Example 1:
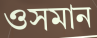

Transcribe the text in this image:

ওসমান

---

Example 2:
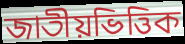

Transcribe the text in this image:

জাতীয়ভিত্তিক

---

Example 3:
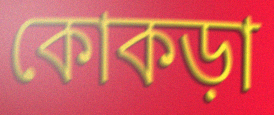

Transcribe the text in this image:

কোকড়া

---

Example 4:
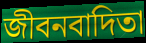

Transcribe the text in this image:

জীবনবাদিতা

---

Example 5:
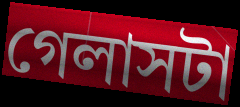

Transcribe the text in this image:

গেলাসটা